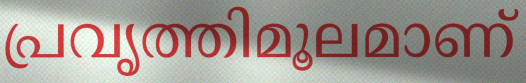
പ്രവൃത്തിമൂലമാണ്